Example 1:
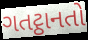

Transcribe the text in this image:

ગતટ્ઠાનતો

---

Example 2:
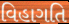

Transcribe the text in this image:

વિહાગતિ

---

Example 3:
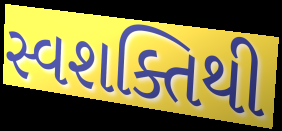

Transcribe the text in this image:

સ્વશક્તિથી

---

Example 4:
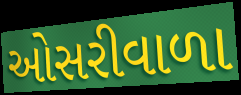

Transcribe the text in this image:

ઓસરીવાળા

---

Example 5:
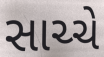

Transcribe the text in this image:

સાચ્ચે